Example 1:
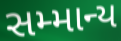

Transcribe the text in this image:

સમ્માન્ય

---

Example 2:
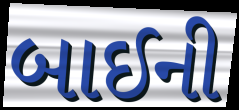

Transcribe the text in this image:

બાઈની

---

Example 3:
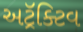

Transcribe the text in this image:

અટ્રૅક્ટિવ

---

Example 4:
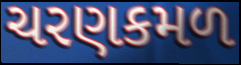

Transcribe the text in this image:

ચરણકમળ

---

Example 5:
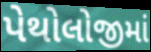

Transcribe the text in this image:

પેથોલોજીમાં